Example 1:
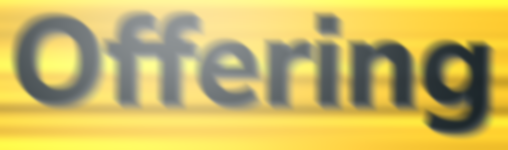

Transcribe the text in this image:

Offering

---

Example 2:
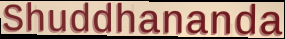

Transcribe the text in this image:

Shuddhananda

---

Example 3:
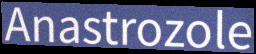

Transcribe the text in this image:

Anastrozole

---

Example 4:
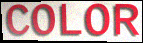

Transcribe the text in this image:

COLOR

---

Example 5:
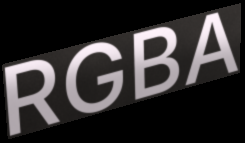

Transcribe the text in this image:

RGBA